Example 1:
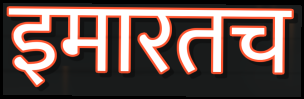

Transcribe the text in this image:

इमारतच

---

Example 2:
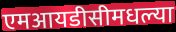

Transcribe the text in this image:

एमआयडीसीमधल्या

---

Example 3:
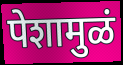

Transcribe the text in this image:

पेशामुळं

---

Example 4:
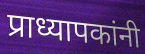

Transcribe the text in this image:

प्राध्यापकांनी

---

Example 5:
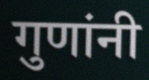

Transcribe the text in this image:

गुणांनी